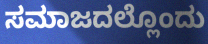
ಸಮಾಜದಲ್ಲೊಂದು